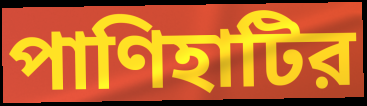
পাণিহাটির